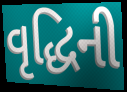
વૃદ્ધિની